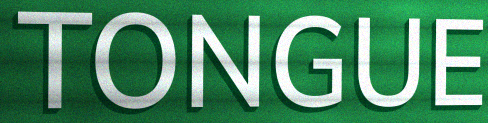
TONGUE